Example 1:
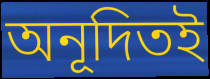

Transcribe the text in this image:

অনূদিতই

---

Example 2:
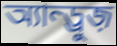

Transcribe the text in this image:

অ্যান্ড্রুজ়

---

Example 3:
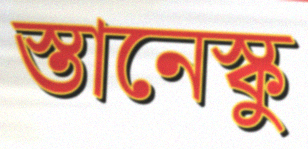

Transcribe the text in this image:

স্তানেস্কু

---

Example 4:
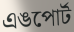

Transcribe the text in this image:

এঙপোর্ট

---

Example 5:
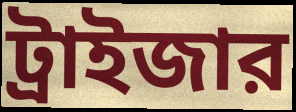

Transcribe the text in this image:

ট্রাইজার